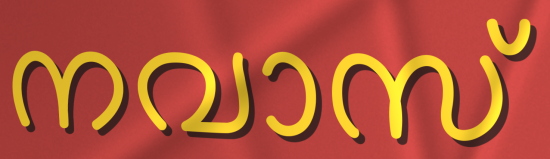
നവാസ്